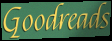
Goodreads